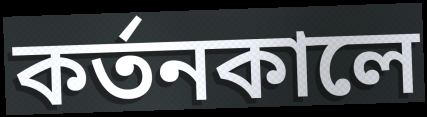
কর্তনকালে